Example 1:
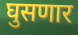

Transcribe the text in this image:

घुसणार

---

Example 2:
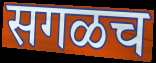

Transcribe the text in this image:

सगळच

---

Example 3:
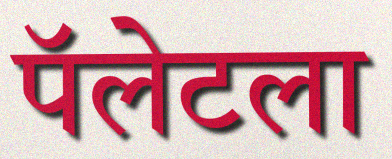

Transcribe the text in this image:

पॅलेटला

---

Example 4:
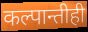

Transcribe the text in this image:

कल्पान्तीही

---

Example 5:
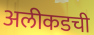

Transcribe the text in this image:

अलीकडची